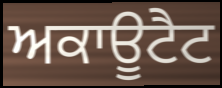
ਅਕਾਊਟੈਟ